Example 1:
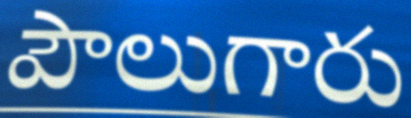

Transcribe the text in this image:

పౌలుగారు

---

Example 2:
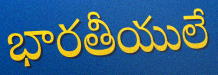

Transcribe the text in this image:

భారతీయులే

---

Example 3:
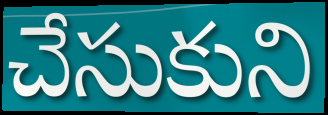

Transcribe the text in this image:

చేసుకుని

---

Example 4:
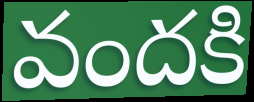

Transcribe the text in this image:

వందకి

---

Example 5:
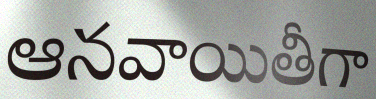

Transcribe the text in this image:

ఆనవాయితీగా